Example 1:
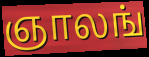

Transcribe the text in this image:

ஞாலங்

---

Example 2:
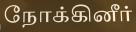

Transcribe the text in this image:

நோக்கினீர்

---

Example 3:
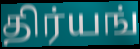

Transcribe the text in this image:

திர்யங்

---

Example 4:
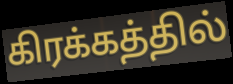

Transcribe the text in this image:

கிரக்கத்தில்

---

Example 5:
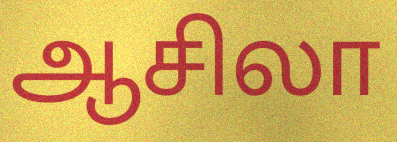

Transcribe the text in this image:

ஆசிலா